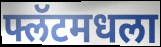
फ्लॅटमधला